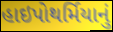
હાઇપોથર્મિયાનું